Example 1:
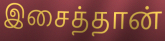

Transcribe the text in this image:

இசைத்தான்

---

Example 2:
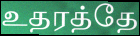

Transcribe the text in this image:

உதரத்தே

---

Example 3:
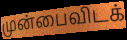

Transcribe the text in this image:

முன்பைவிடக்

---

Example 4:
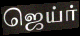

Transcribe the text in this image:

ஜெய்ர்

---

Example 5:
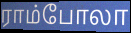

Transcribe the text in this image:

ராம்போலா